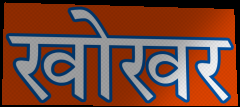
खोखर